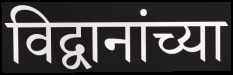
विद्वानांच्या